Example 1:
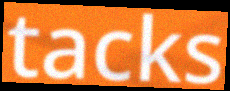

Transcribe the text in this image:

tacks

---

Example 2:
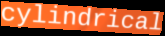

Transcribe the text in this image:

cylindrical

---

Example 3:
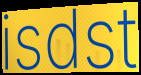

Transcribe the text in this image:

isdst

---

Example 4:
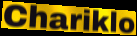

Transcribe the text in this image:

Chariklo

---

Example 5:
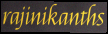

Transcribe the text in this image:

rajinikanths